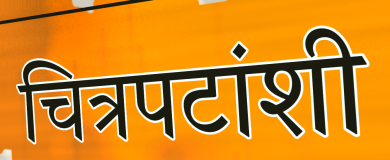
चित्रपटांशी